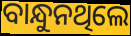
ବାନ୍ଧୁନଥିଲେ